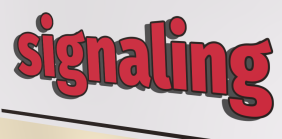
signaling